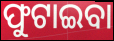
ଫୁଟାଇବା